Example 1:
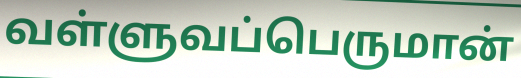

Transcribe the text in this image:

வள்ளுவப்பெருமான்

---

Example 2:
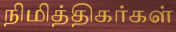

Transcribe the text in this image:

நிமித்திகர்கள்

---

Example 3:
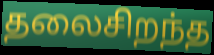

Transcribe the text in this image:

தலைசிறந்த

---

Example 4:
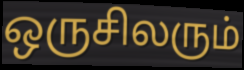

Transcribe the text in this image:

ஒருசிலரும்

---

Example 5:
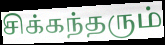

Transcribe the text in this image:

சிக்கந்தரும்